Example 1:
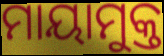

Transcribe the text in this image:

ମାୟାମୁକ୍ତ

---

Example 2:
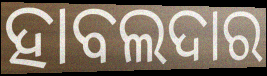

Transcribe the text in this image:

ହାବଲଦାର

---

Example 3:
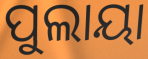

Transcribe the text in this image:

ପୁଲାୟା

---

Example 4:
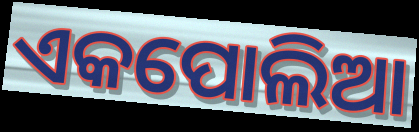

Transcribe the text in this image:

ଏକପୋଲିଆ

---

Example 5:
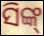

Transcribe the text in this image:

ସିଙ୍କ୍